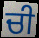
ਚੀ